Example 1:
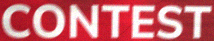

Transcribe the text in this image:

CONTEST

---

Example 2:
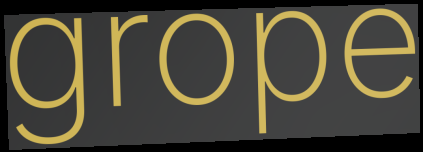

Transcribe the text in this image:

grope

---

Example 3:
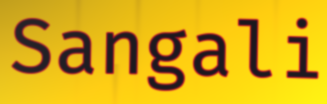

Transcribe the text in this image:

Sangali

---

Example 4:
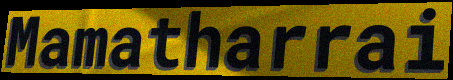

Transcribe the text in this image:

Mamatharrai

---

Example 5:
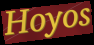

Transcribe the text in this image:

Hoyos